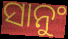
ସାନୁଂ